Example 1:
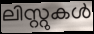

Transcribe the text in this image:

ലിസ്റ്റുകൾ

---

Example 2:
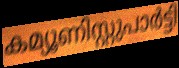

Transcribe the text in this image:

കമ്യൂണിസ്റ്റുപാർട്ടി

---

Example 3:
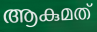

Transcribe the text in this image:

ആകുമത്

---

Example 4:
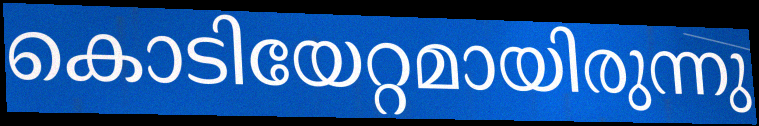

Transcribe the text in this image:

കൊടിയേറ്റമായിരുന്നു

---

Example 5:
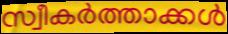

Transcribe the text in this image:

സ്വീകർത്താക്കൾ